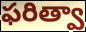
ఫరిత్వా